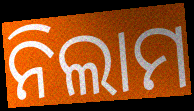
ନିଲାମ